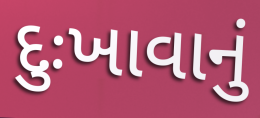
દુઃખાવાનું